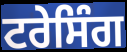
ਟਰੇਸਿੰਗ